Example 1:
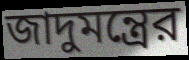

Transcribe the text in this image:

জাদুমন্ত্রের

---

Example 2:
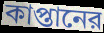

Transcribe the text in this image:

কাপ্তানের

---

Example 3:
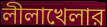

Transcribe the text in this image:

লীলাখেলার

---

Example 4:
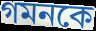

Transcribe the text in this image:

গমনকে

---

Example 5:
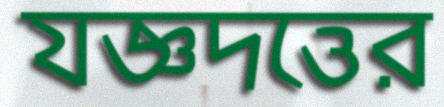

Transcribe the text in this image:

যজ্ঞদত্তের